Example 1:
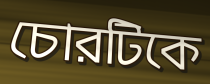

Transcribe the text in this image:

চোরটিকে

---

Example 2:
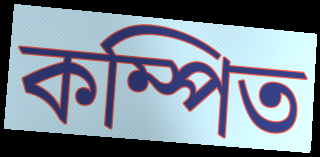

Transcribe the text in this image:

কম্পিত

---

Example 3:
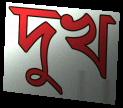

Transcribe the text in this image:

দুখ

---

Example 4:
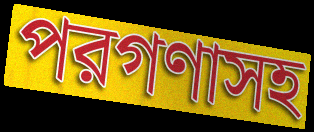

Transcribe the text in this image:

পরগণাসহ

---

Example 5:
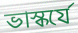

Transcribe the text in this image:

ভাস্কর্যে